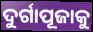
ଦୁର୍ଗାପୂଜାକୁ